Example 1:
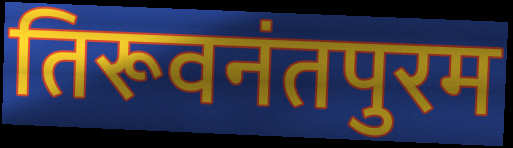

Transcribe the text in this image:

तिरूवनंतपुरम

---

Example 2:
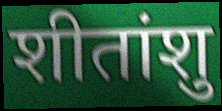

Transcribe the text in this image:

शीतांशु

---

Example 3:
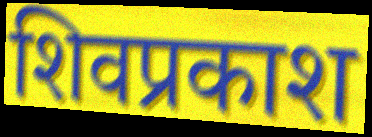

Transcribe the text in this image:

शिवप्रकाश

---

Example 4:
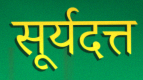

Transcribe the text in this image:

सूर्यदत्त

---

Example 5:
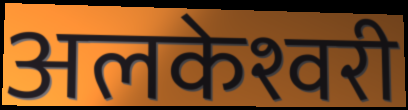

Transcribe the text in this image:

अलकेश्वरी